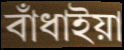
বাঁধাইয়া